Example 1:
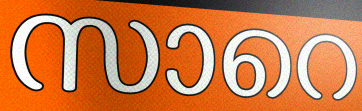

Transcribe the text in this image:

സാറെ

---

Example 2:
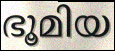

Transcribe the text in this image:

ഭൂമിയ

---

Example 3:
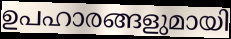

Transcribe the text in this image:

ഉപഹാരങ്ങളുമായി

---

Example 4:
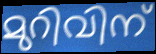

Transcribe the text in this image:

മുറിവിന്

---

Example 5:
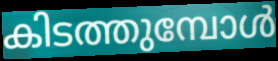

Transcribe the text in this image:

കിടത്തുമ്പോൾ